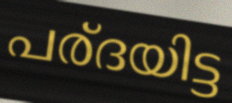
പര്ദയിട്ട